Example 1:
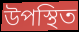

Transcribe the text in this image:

উপস্থিত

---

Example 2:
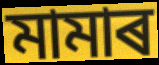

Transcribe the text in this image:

মামাৰ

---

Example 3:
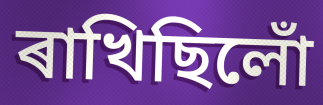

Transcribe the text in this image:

ৰাখিছিলোঁ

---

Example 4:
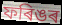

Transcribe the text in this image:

ফৰিঙৰ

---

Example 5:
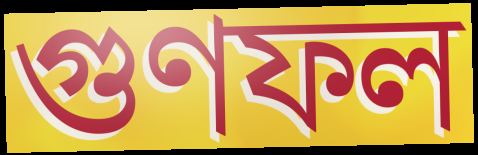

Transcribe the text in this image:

গুণফল